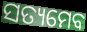
ସତ୍ୟମେବ